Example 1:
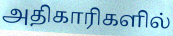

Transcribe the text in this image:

அதிகாரிகளில்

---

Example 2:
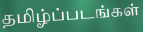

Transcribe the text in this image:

தமிழ்ப்படங்கள்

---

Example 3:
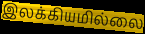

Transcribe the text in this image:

இலக்கியமில்லை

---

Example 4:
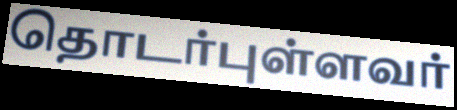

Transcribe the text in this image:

தொடர்புள்ளவர்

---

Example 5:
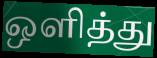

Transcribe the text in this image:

ஒளித்து